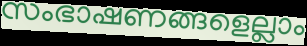
സംഭാഷണങ്ങളെല്ലാം